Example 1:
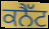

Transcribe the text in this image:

ਕਨੈੱਟ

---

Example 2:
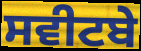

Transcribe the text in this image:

ਸਵੀਟਬੇ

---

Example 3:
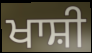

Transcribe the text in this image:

ਖਾਸ਼ੀ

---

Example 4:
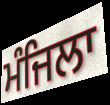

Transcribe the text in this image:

ਮੰਜਿਲਾ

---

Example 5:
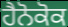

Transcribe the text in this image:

ਹੈਨੋਕੋਕ